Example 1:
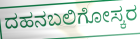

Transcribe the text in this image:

ದಹನಬಲಿಗೋಸ್ಕರ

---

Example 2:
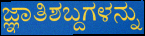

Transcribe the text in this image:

ಜ್ಞಾತಿಶಬ್ದಗಳನ್ನು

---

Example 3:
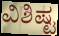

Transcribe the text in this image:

ವಿಶಿಷ್ಟ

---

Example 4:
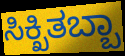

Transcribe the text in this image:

ಸಿಕ್ಖಿತಬ್ಬಾ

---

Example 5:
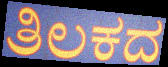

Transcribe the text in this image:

ತಿಲಕದ